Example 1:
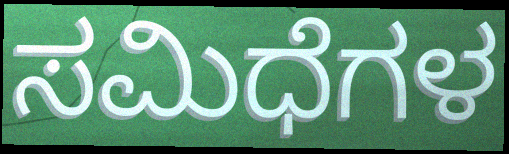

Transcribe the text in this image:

ಸಮಿಧೆಗಳ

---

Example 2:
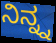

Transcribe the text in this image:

ನಿನ್ನ್ನ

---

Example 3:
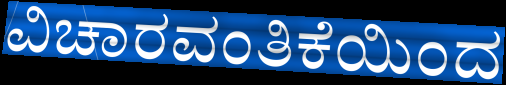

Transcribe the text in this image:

ವಿಚಾರವಂತಿಕೆಯಿಂದ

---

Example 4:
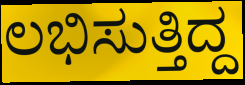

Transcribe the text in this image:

ಲಭಿಸುತ್ತಿದ್ದ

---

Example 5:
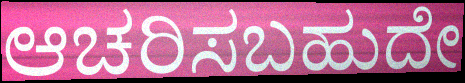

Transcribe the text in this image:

ಆಚರಿಸಬಹುದೇ